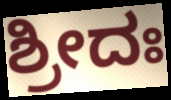
ಶ್ರೀದಃ